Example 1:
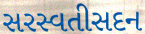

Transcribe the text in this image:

સરસ્વતીસદન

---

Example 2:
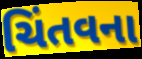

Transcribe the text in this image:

ચિંતવના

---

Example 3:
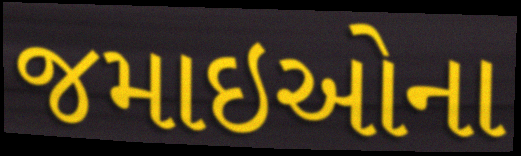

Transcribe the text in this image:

જમાઇઓના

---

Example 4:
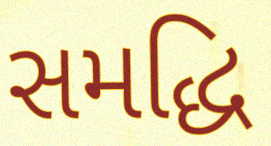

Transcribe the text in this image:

સમદ્ધિ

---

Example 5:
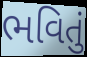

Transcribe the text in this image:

ભવિતું